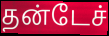
தன்டேச்